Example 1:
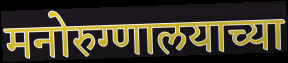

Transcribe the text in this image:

मनोरुग्णालयाच्या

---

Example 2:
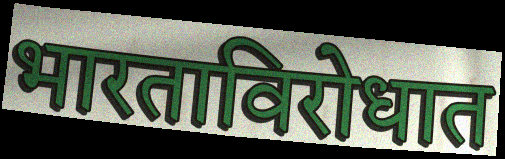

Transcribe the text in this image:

भारताविरोधात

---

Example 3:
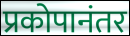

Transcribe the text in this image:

प्रकोपानंतर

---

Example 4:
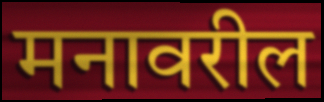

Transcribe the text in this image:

मनावरील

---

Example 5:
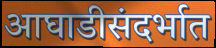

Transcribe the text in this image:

आघाडीसंदर्भात